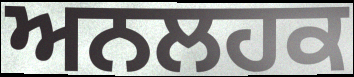
ਅਨਲਹਕ